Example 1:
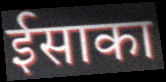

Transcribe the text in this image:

ईसाका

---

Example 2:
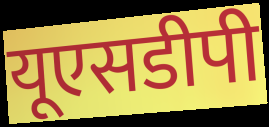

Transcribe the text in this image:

यूएसडीपी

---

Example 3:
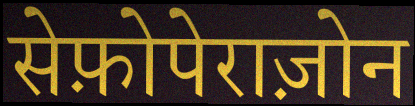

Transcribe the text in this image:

सेफ़ोपेराज़ोन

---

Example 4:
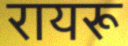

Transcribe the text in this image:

रायरू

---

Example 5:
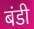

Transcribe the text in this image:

बंडी